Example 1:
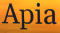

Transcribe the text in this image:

Apia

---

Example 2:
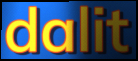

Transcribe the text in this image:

dalit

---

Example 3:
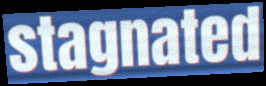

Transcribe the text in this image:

stagnated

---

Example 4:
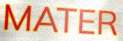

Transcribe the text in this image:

MATER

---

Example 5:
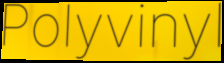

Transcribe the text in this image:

Polyvinyl